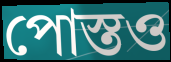
পোস্তও